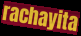
rachayita